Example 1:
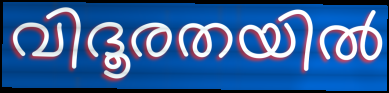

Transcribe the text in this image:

വിദൂരതയിൽ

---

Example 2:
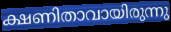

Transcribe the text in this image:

ക്ഷണിതാവായിരുന്നു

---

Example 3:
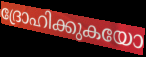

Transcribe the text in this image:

ദ്രോഹിക്കുകയോ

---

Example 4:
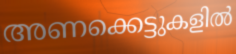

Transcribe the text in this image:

അണക്കെട്ടുകളിൽ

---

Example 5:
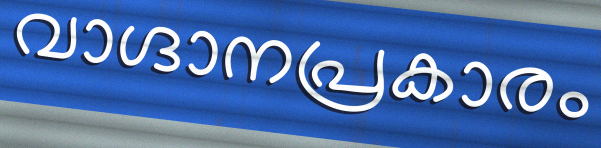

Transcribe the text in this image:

വാഗ്ദാനപ്രകാരം